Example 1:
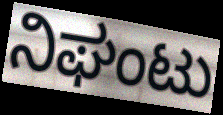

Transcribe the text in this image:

ನಿಘಂಟು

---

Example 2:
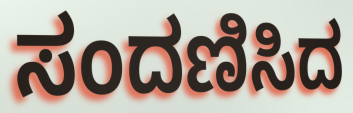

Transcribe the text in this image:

ಸಂದಣಿಸಿದ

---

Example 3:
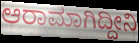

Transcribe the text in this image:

ಆರಾಮಾಗಿದ್ದೀನಿ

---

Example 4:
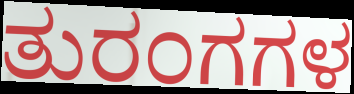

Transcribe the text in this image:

ತುರಂಗಗಳ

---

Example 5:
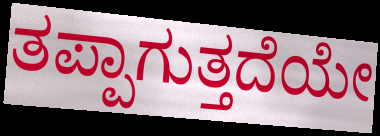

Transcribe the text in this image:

ತಪ್ಪಾಗುತ್ತದೆಯೇ